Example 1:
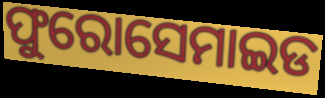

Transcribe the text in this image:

ଫୁରୋସେମାଇଡ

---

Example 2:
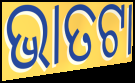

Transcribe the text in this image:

ଭାତଟା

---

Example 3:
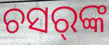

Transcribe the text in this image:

ଚସର୍‌ଙ୍କ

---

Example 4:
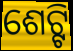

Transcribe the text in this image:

ଶେଟ୍ଟି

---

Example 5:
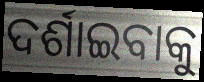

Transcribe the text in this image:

ଦର୍ଶାଇବାକୁ